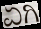
ಏಗಿ